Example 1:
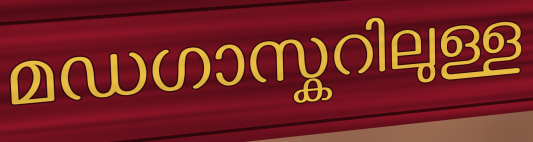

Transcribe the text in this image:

മഡഗാസ്കറിലുള്ള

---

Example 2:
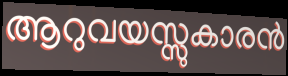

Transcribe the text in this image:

ആറുവയസ്സുകാരൻ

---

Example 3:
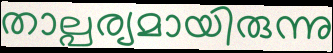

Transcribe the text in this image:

താല്പര്യമായിരുന്നു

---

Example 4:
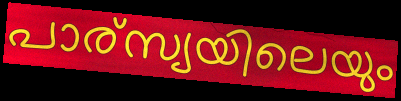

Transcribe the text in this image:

പാര്സ്യയിലെയും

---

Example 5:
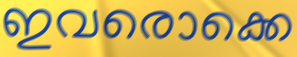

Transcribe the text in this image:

ഇവരൊക്കെ